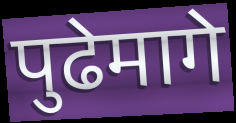
पुढेमागे